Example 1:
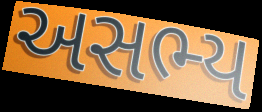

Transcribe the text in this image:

અસભ્ય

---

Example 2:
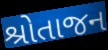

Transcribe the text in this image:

શ્રોતાજન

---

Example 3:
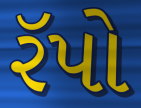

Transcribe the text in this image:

રૅપો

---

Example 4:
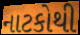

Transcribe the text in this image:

નાટકોથી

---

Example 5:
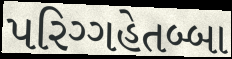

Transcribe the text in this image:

પરિગ્ગહેતબ્બા